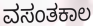
ವಸಂತಕಾಲ